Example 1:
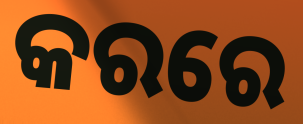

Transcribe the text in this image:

କରରେ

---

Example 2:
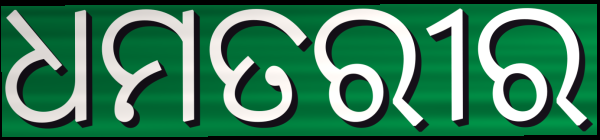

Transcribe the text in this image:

ଧମତରୀର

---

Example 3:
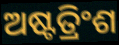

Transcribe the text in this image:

ଅଷ୍ଟତ୍ରିଂଶ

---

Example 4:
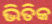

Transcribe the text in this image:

ଭିତିକ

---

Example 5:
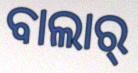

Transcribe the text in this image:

ବାଲାର୍